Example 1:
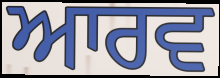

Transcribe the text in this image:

ਆਰਵ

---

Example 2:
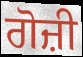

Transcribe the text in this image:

ਗੋਜ਼ੀ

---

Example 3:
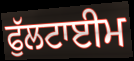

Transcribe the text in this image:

ਫੁੱਲਟਾਈਮ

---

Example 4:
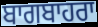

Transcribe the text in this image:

ਬਾਗਬਾਹਰਾ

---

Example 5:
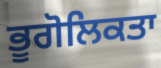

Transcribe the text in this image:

ਭੂਗੋਲਿਕਤਾ